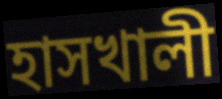
হাসখালী